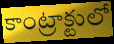
కాంట్రాక్టులో